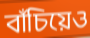
বাঁচিয়েও